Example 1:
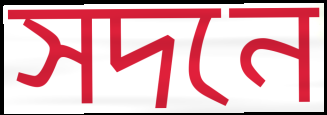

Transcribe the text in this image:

সদনে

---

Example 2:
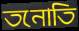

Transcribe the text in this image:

তনোতি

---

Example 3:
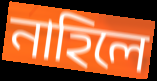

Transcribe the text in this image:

নাহিলে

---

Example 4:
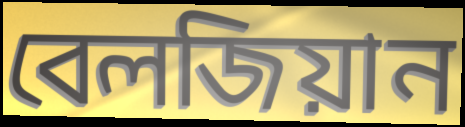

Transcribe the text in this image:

বেলজিয়ান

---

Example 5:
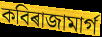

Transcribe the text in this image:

কবিৰাজামাৰ্গ